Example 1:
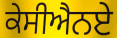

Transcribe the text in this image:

ਕੇਸੀਐਨਏ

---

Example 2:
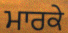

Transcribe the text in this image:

ਮਾਰਕੇ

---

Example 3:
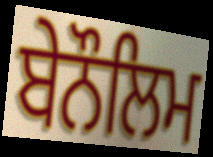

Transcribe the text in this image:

ਬੇਨੌਲਿਮ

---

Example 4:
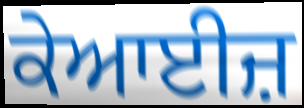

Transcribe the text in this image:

ਕੇਆਈਜ਼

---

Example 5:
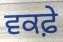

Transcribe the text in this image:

ਵਕਫ਼ੇ